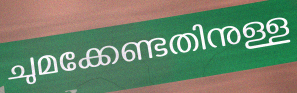
ചുമക്കേണ്ടതിനുള്ള